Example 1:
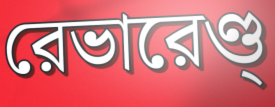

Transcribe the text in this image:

রেভারেণ্ড্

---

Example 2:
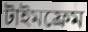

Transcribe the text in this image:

টাইমফ্রেম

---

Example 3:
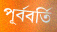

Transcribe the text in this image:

পূর্ববর্তি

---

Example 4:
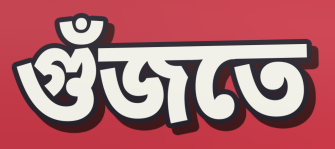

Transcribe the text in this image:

গুঁজতে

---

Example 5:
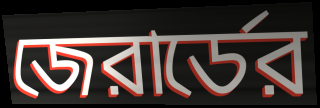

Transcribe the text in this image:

জেরার্ডের